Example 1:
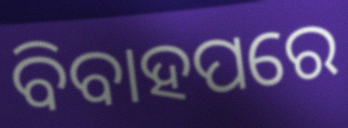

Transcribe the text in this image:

ବିବାହପରେ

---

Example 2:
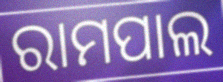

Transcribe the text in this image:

ରାମପାଲ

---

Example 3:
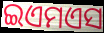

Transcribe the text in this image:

ଇଏମଏସ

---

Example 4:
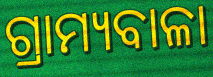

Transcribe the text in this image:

ଗ୍ରାମ୍ୟବାଳା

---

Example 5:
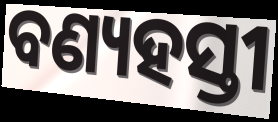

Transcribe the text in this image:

ବଣ୍ୟହସ୍ତୀ